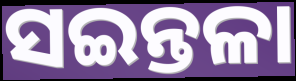
ସଇନ୍ତଳା